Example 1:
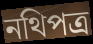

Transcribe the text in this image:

নথিপত্র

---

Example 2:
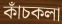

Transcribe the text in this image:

কাঁচকলা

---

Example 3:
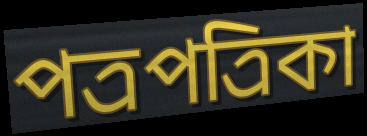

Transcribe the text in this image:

পত্রপত্রিকা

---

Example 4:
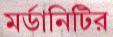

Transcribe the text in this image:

মর্ডানিটির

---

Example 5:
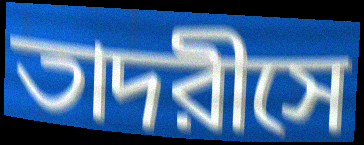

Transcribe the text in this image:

তাদরীসে